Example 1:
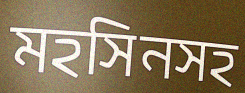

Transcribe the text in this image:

মহসিনসহ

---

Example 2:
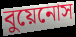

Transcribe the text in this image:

বুয়েনোস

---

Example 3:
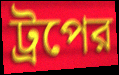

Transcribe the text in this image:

ট্রপের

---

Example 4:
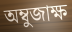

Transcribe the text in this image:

অম্বুজাক্ষ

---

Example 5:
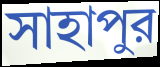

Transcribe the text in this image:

সাহাপুর